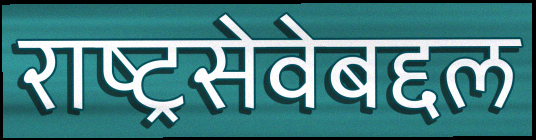
राष्ट्रसेवेबद्दल